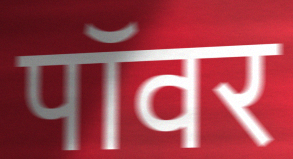
पॉवर